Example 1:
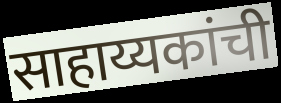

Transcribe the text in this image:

साहाय्यकांची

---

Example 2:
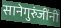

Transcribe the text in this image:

सानेगुरुंजींनी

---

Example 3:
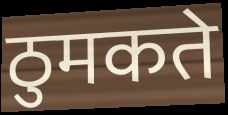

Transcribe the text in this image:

ठुमकते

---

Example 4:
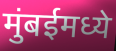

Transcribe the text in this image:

मुंबईमध्ये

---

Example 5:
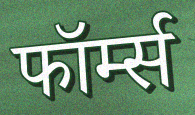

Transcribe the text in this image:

फॉर्म्स